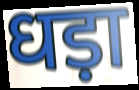
धड़ा